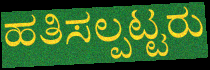
ಹತಿಸಲ್ಪಟ್ಟರು